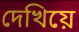
দেখিয়ে